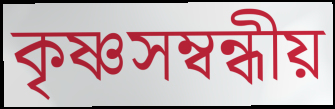
কৃষ্ণসম্বন্ধীয়